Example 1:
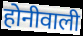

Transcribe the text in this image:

होनीवाली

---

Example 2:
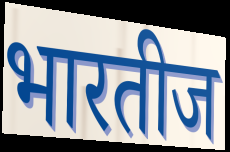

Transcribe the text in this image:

भारतीज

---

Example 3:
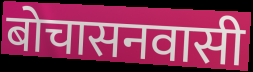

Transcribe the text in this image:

बोचासनवासी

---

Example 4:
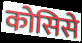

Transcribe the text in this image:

कोसिसे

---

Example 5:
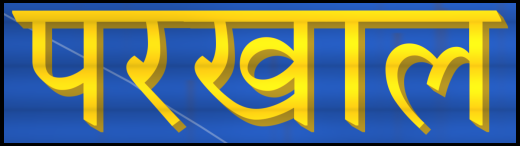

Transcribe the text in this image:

परखाल